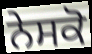
ਨੇਸਕੋ